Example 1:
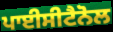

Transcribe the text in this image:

ਪਾਈਸੀਟੈਨੋਲ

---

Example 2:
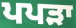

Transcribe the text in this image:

ਪਪੜਾ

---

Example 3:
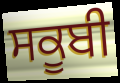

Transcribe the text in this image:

ਸਕੂਬੀ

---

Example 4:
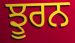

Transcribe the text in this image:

ਝੂਰਨ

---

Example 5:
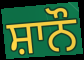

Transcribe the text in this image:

ਸ਼ਾਨੌ